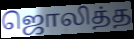
ஜொலித்த